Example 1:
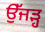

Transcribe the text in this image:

ਉੱਜੜ੍ਹ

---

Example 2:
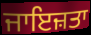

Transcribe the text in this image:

ਜਾਇਜ਼ਤਾ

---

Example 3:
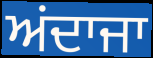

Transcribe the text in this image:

ਅਂਦਾਜਾ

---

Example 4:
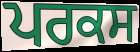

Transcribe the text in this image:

ਪਰਕਸ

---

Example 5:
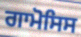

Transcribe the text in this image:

ਗਾਮੋਸਿਸ